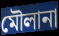
মৌলানা